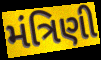
મંત્રિણી